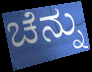
ಚೆನ್ನು